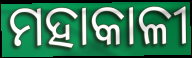
ମହାକାଳୀ